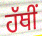
ਹੱਥੀਂ